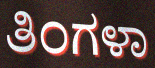
ತಿಂಗಳಾ